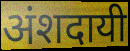
अंशदायी